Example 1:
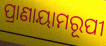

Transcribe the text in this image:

ପ୍ରାଣାୟାମରୂପୀ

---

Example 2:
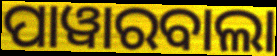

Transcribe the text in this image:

ପାୱାରବାଲା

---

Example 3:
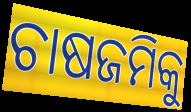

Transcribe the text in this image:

ଚାଷଜମିକୁ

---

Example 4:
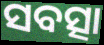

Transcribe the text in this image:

ସବତ୍ସା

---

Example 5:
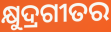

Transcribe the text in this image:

କ୍ଷୁଦ୍ରଗୀତର